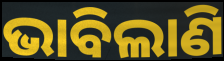
ଭାବିଲାଣି